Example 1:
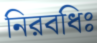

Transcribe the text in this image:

নিরবধিঃ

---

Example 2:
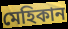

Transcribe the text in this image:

মেহিকান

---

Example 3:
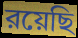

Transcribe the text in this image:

রয়েছি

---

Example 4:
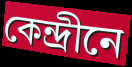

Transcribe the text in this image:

কেন্দ্রীনে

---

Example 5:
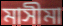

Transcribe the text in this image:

মাসীমা